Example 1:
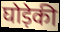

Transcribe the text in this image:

घोड़ेकी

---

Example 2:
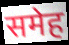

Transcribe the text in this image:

समेह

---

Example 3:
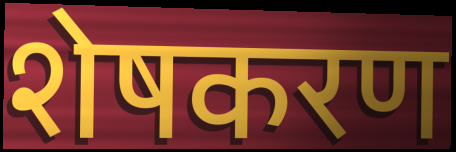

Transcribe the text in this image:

शेषकरण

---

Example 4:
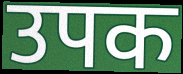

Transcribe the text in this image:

उपक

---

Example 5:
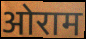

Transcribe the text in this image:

ओराम